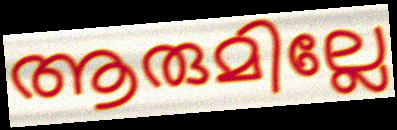
ആരുമില്ലേ